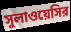
সুলাওয়েসির